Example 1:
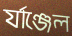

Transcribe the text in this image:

র্যাঞ্জেল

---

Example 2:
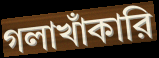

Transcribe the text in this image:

গলাখাঁকারি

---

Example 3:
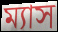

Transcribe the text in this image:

ম্যাস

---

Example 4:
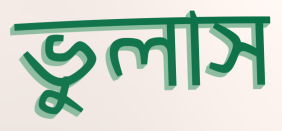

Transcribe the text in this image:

ভুলাস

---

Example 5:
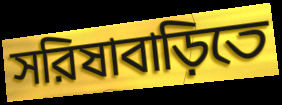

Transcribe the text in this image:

সরিষাবাড়িতে